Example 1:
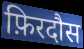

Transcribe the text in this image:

फ़िरदौस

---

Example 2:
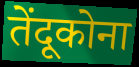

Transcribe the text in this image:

तेंदूकोना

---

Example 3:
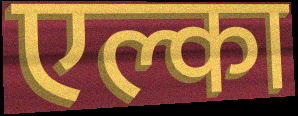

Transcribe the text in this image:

एल्का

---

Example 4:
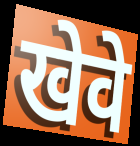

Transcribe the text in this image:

खेवे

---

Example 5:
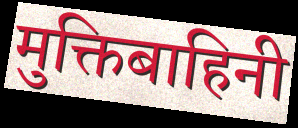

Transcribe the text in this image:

मुक्तिबाहिनी